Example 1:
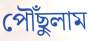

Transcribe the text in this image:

পৌঁছুলাম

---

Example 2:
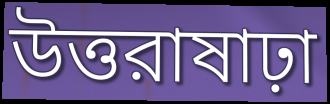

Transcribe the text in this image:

উত্তরাষাঢ়া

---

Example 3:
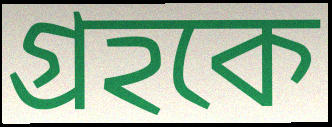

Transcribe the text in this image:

গ্রহকে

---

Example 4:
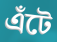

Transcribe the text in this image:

এঁটে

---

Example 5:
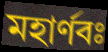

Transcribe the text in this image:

মহার্ণবঃ